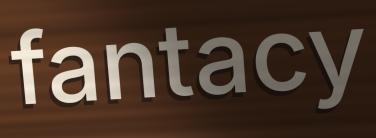
fantacy